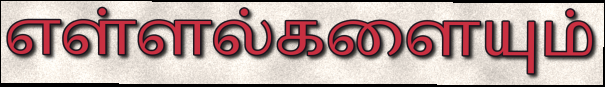
எள்ளல்களையும்